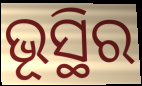
ଭୂସ୍ଥିର